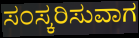
ಸಂಸ್ಕರಿಸುವಾಗ